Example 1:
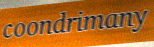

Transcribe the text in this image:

coondrimany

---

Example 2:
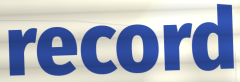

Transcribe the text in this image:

record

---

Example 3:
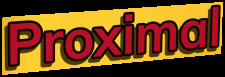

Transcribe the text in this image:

Proximal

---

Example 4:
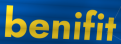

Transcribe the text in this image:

benifit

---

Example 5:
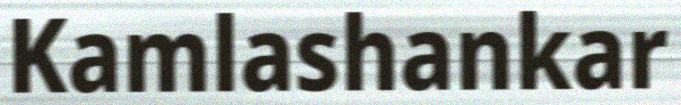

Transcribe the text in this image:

Kamlashankar